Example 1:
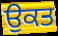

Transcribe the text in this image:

ਉੁਕਤ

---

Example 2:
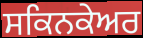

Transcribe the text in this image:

ਸਕਿਨਕੇਅਰ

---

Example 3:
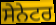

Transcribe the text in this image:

ਸੇਨੇਟਰ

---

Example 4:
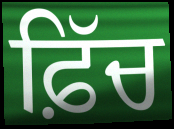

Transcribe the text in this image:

ਫ਼ਿੱਚ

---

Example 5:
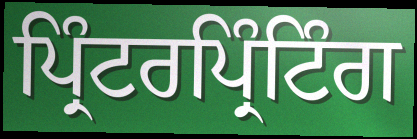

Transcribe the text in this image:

ਪ੍ਰਿੰਟਰਪ੍ਰਿੰਟਿੰਗ